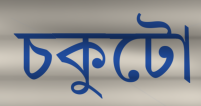
চকুটো